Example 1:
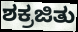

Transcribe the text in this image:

ಶಕ್ರಜಿತು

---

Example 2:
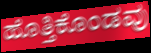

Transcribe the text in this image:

ಹೊತ್ತಿಕೊಂಡವು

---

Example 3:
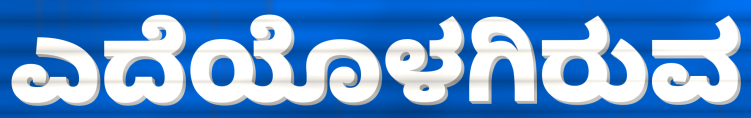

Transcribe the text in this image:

ಎದೆಯೊಳಗಿರುವ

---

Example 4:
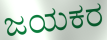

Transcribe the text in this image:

ಜಯಕರ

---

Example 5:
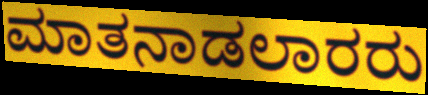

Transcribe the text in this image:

ಮಾತನಾಡಲಾರರು